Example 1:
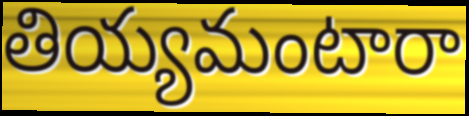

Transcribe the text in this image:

తియ్యమంటారా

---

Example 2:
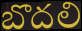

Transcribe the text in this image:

బొదలి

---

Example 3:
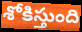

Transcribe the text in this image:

శోకిస్తుంది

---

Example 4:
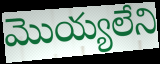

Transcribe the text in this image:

మొయ్యలేని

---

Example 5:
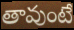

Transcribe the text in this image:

తావుంటే